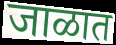
जाळात